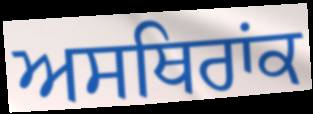
ਅਸਥਿਰਾਂਕ